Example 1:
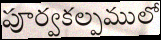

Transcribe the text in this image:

పూర్వకల్పములో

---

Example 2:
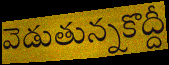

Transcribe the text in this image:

వెడుతున్నకొద్దీ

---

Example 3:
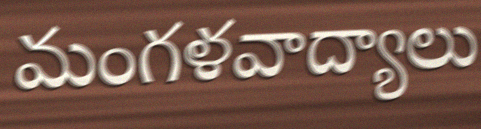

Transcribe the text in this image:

మంగళవాద్యాలు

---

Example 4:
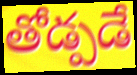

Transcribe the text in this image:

తోడ్పడే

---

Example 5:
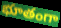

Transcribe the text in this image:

భూతంగా